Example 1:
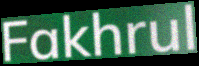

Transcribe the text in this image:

Fakhrul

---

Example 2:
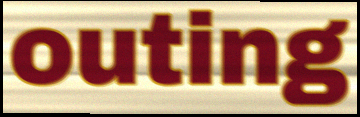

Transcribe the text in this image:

outing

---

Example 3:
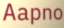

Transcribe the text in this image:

Aapno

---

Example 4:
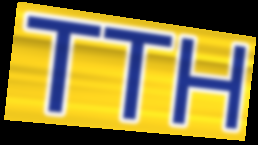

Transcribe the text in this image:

TTH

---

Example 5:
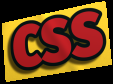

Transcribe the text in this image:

css